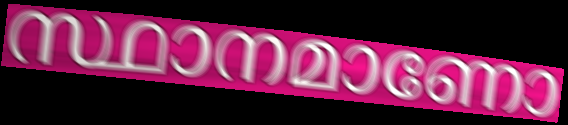
സ്ഥാനമാണോ